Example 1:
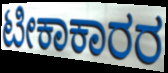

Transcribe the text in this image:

ಟೀಕಾಕಾರರ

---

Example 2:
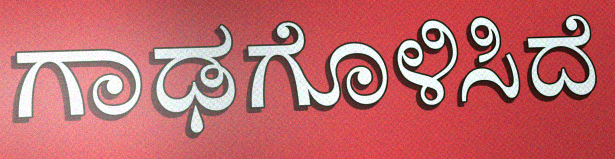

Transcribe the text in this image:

ಗಾಢಗೊಳಿಸಿದೆ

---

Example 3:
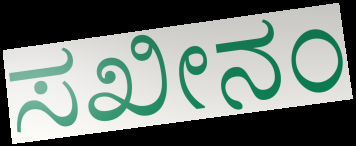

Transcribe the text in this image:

ಸಖೀನಂ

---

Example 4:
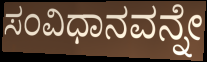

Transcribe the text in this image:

ಸಂವಿಧಾನವನ್ನೇ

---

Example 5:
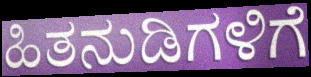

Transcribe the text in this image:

ಹಿತನುಡಿಗಳಿಗೆ